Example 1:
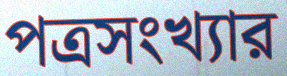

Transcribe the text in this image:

পত্রসংখ্যার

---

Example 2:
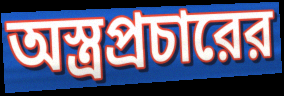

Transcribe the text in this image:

অস্ত্রপ্রচারের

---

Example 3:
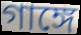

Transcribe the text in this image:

গাঙ্গে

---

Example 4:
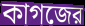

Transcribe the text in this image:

কাগজের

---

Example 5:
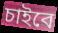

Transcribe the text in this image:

চাইবে